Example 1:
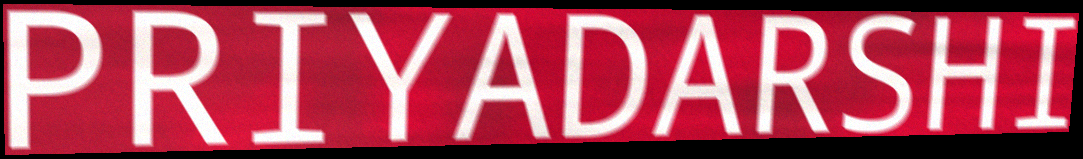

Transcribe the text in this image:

PRIYADARSHI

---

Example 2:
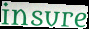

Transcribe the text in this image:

insure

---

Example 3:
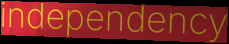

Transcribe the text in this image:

independency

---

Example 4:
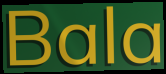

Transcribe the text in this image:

Bala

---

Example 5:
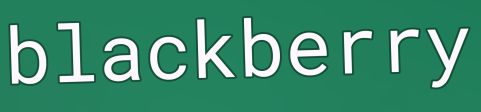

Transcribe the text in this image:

blackberry